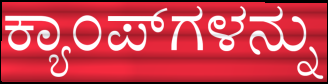
ಕ್ಯಾಂಪ್‍ಗಳನ್ನು